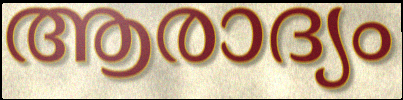
ആരാദ്യം